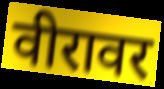
वीरावर